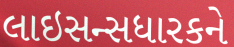
લાઇસન્સધારકને